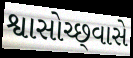
શ્વાસોચ્છ્‍વાસે